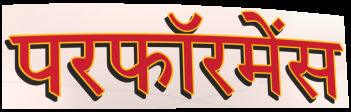
परफॉरमेंस